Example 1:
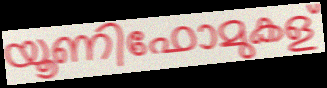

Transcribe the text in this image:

യൂണിഫോമുകള്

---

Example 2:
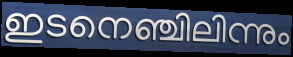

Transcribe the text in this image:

ഇടനെഞ്ചിലിന്നും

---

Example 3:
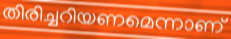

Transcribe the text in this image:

തിരിച്ചറിയണമെന്നാണ്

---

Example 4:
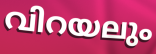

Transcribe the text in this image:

വിറയലും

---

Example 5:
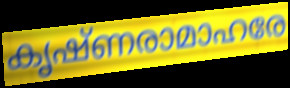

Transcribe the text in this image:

കൃഷ്ണരാമാഹരേ